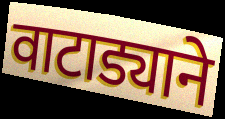
वाटाड्याने